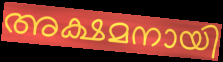
അക്ഷമനായി